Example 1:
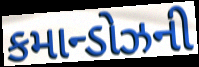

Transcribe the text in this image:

કમાન્ડોઝની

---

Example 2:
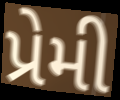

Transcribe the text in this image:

પ્રેમી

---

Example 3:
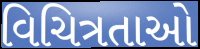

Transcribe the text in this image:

વિચિત્રતાઓ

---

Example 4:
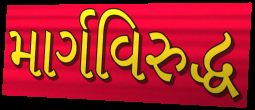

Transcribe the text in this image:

માર્ગવિરુદ્ધ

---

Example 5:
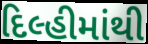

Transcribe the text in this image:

દિલ્હીમાંથી